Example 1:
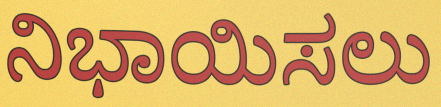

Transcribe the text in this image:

ನಿಭಾಯಿಸಲು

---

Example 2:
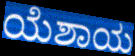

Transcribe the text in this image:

ಯೆಶಾಯ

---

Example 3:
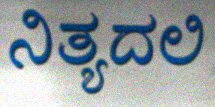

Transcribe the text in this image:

ನಿತ್ಯದಲಿ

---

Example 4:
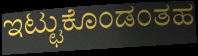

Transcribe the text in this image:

ಇಟ್ಟುಕೊಂಡಂತಹ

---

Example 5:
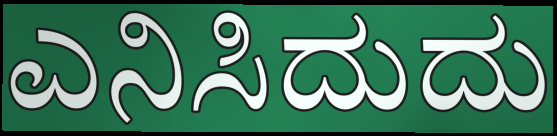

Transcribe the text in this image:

ಎನಿಸಿದುದು